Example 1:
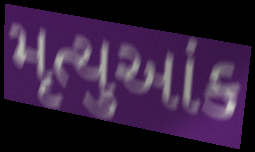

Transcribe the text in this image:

મૃત્યુઆંક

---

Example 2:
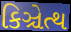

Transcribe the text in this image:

કિઞ્ચેત્થ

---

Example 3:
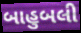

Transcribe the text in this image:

બાહુબલી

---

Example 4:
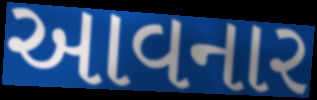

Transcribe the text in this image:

આવનાર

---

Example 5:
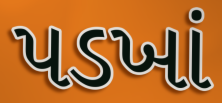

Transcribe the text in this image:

પડખાં